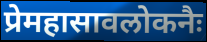
प्रेमहासावलोकनैः